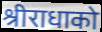
श्रीराधाको